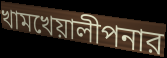
খামখেয়ালীপনার